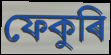
ফেকুৰি